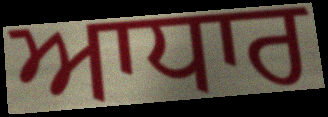
ਆਧਾਰ